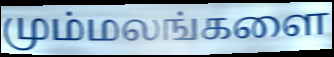
மும்மலங்களை